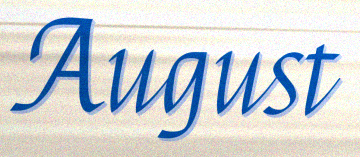
August